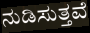
ನುಡಿಸುತ್ತವೆ